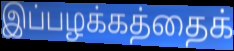
இப்பழக்கத்தைக்